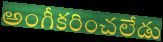
అంగీకరించలేడు